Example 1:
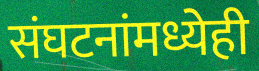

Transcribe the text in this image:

संघटनांमध्येही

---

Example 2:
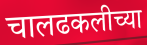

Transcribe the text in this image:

चालढकलीच्या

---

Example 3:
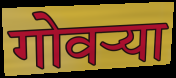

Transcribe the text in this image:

गोवर्‍या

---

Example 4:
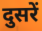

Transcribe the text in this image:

दुसरें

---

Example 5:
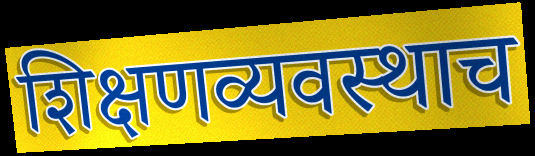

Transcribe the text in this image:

शिक्षणव्यवस्थाच